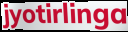
jyotirlinga